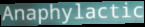
Anaphylactic